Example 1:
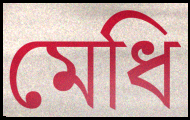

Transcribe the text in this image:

মেধি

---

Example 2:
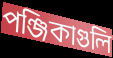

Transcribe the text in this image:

পঞ্জিকাগুলি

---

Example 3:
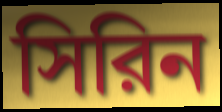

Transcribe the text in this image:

সিরিন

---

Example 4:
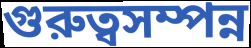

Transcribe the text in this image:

গুরুত্বসম্পন্ন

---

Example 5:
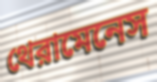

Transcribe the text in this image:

থেরামেনেস